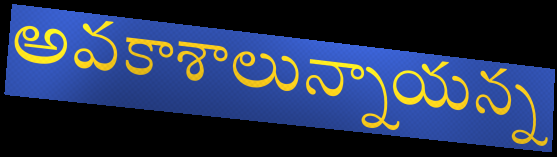
అవకాశాలున్నాయన్న